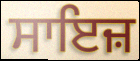
ਸਾਇਜ਼